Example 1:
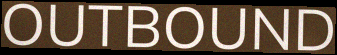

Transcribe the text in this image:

OUTBOUND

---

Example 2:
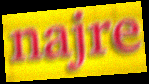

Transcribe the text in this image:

najre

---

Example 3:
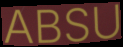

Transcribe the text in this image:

ABSU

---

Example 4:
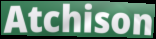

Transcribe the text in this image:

Atchison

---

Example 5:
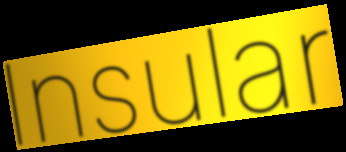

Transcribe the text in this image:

Insular